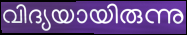
വിദ്യയായിരുന്നു